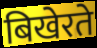
बिखेरते